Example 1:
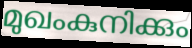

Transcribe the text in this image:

മുഖംകുനിക്കും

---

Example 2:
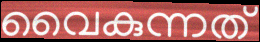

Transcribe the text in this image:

വൈകുന്നത്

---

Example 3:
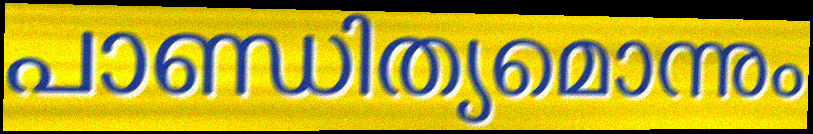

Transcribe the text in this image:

പാണ്ഡിത്യമൊന്നും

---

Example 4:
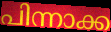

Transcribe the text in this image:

പിന്നാക്ക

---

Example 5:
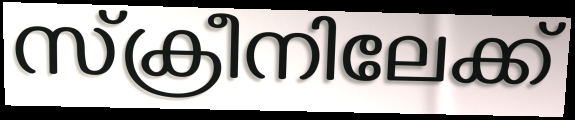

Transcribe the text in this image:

സ്‌ക്രീനിലേക്ക്